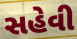
સહેવી